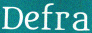
Defra